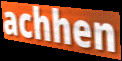
achhen